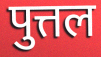
पुत्तल